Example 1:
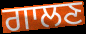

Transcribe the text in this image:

ਗਾਲਣ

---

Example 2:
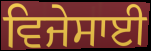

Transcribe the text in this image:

ਵਿਜੇਸਾਈ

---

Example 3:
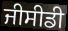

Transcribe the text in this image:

ਜੀਸੀਡੀ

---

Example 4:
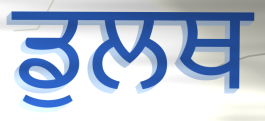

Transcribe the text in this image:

ਡੁਲਥ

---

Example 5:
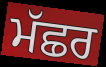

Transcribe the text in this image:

ਮੱਛਰ